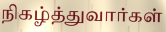
நிகழ்த்துவார்கள்